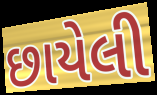
છાયેલી